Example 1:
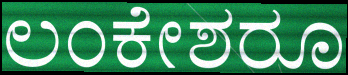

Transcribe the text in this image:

ಲಂಕೇಶರೂ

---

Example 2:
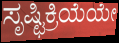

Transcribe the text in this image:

ಸೃಷ್ಟಿಕ್ರಿಯೆಯೇ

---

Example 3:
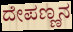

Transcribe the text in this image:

ದೇಪಣ್ಣನ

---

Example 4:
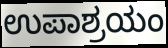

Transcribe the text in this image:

ಉಪಾಶ್ರಯಂ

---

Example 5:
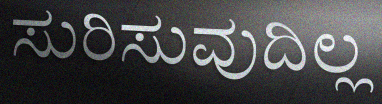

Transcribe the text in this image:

ಸುರಿಸುವುದಿಲ್ಲ